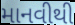
માનવીથી